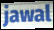
jawal